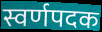
स्वर्णपदक